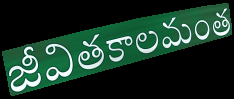
జీవితకాలమంత